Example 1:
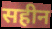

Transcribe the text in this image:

सहीन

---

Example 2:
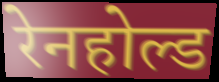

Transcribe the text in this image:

रेनहोल्ड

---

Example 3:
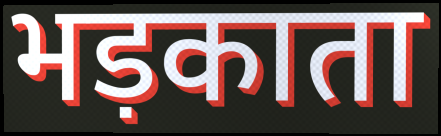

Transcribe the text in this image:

भड़काता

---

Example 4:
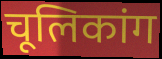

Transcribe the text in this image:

चूलिकांग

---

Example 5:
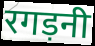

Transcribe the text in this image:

रगड़नी